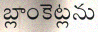
బ్లాంకెట్లను